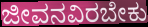
ಜೀವನವಿರಬೇಕು